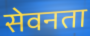
सेवनता